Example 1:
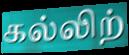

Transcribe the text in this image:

கல்லிற்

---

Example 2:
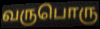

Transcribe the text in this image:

வருபொரு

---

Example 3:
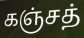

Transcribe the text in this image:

கஞ்சத்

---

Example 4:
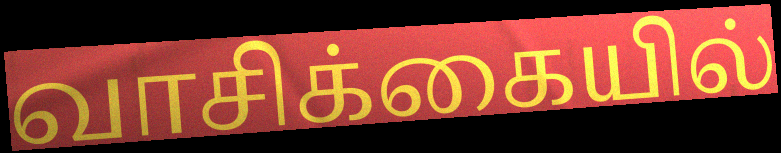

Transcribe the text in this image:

வாசிக்கையில்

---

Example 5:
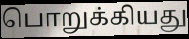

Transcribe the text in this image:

பொறுக்கியது